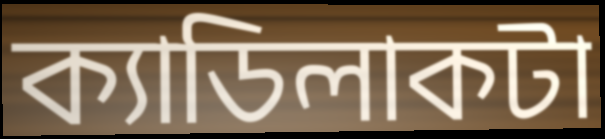
ক্যাডিলাকটা